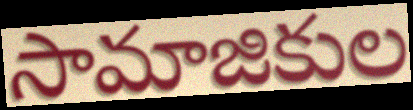
సామాజికుల